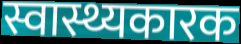
स्वास्थ्यकारक